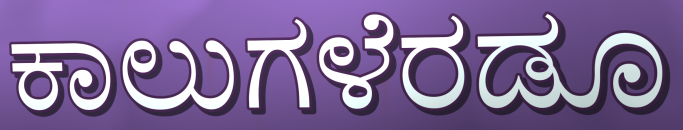
ಕಾಲುಗಳೆರಡೂ